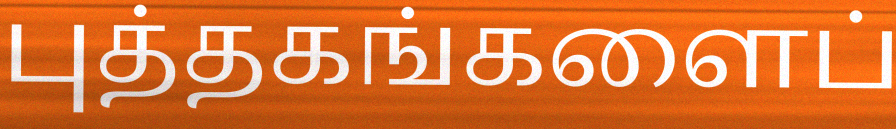
புத்தகங்களைப்